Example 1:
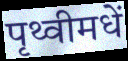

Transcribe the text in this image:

पृथ्वीमधें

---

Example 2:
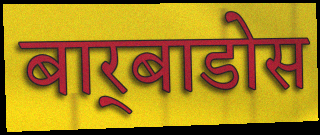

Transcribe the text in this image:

बार्बाडोस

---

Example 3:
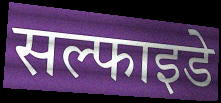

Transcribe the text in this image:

सल्फाइडे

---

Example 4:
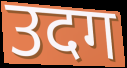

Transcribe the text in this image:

उदग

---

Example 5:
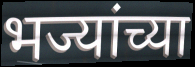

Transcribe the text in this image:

भज्यांच्या